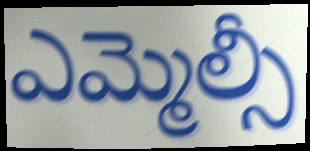
ఎమ్మెల్సీ